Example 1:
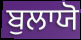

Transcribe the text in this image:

ਬੁਲਾਯੋ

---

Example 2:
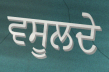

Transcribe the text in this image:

ਵਸੂਲਦੇ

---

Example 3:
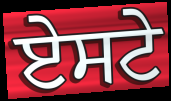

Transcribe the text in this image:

ਏਸਟੇ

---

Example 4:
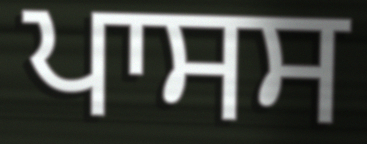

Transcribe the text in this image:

ਪਾਸਸ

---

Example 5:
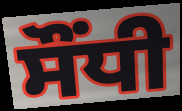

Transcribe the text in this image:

ਸੌਂਧੀ